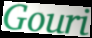
Gouri